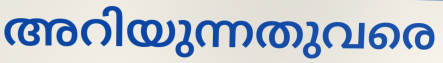
അറിയുന്നതുവരെ